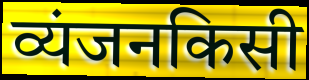
व्यंजनकिसी